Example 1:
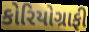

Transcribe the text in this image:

કોરિયોગ્રાફી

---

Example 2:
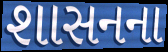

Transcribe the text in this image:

શાસનના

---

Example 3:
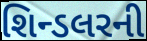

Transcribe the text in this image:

શિન્ડલરની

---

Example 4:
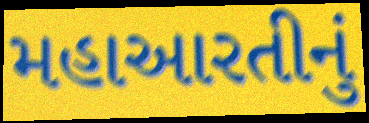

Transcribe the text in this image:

મહાઆરતીનું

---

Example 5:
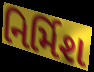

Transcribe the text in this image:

નિર્મિશ